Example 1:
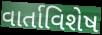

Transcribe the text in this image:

વાર્તાવિશેષ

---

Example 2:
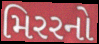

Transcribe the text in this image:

મિરરનો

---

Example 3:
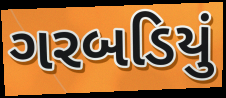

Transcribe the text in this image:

ગરબડિયું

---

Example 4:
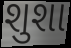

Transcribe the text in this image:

શુશા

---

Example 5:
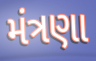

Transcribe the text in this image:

મંત્રણા